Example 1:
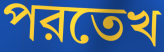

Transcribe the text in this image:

পরতেখ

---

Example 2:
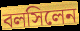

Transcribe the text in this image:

বলসিলেন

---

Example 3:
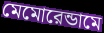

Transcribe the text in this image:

মেমোরেন্ডামে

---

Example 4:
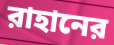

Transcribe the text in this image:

রাহানের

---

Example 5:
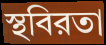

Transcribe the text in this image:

স্থবিরতা